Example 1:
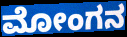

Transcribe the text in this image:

ಮೋಂಗನ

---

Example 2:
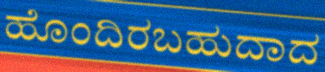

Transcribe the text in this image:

ಹೊಂದಿರಬಹುದಾದ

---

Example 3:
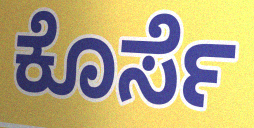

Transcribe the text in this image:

ಕೊರ್ಸೆ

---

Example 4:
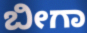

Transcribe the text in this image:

ಬೀಗಾ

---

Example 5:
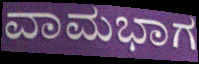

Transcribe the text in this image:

ವಾಮಭಾಗ